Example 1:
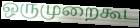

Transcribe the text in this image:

ஒருமுறைகூட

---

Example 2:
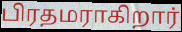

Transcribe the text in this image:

பிரதமராகிறார்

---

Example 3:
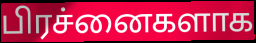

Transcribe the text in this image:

பிரச்னைகளாக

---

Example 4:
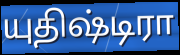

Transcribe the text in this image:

யுதிஷ்டிரா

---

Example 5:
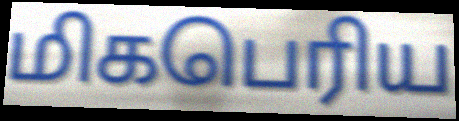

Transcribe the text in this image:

மிகபெரிய